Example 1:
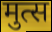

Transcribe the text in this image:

मुत्स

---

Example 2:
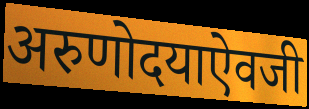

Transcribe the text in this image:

अरुणोदयाऐवजी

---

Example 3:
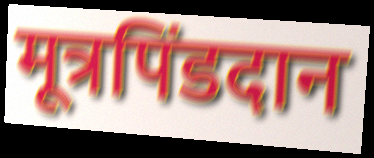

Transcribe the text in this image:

मूत्रपिंडदान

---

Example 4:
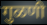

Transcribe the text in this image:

गुळणी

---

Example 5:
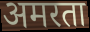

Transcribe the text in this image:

अमरता